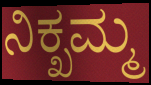
ನಿಕ್ಖಮ್ಮ